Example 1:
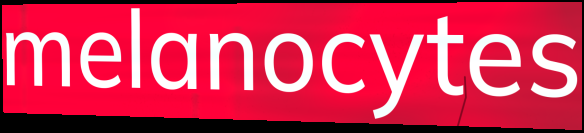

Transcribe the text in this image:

melanocytes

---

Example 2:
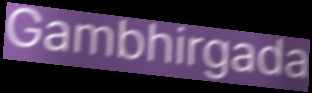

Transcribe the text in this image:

Gambhirgada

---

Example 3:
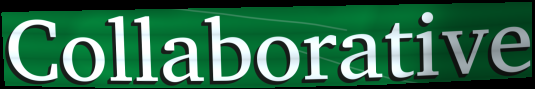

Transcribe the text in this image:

Collaborative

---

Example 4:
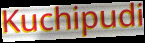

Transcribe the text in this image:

Kuchipudi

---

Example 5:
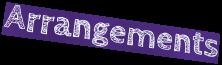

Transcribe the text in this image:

Arrangements